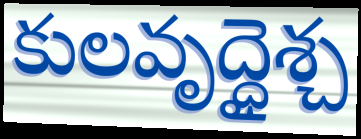
కులవృద్ధైశ్చ